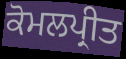
ਕੋਮਲਪ੍ਰੀਤ